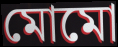
মোমো